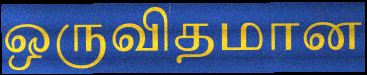
ஒருவிதமான